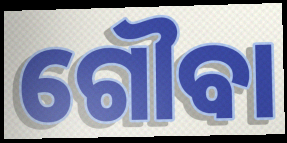
ଗୌବା